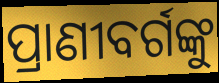
ପ୍ରାଣୀବର୍ଗଙ୍କୁ